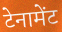
टेनामेंट